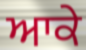
ਆਕੇ